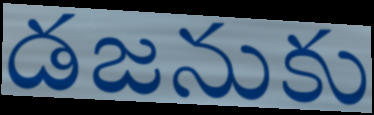
డజనుకు